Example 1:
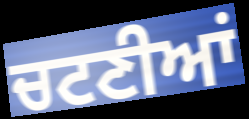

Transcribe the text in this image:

ਚਟਣੀਆਂ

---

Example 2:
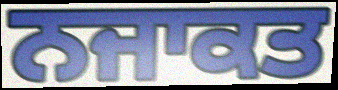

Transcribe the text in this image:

ਨਜਾਕਤ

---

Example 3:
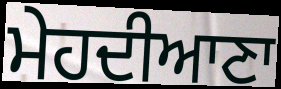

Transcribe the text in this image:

ਮੇਹਦੀਆਣਾ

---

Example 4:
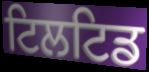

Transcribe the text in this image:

ਟਿਲਟਿਡ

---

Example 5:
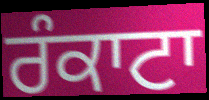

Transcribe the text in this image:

ਰੰਕਾਟਾ